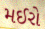
મઈરો